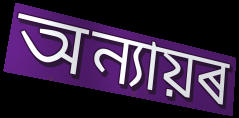
অন্যায়ৰ